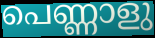
പെണ്ണാളു